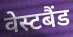
वेस्टबैंड